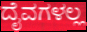
ದೈವಗಳಲ್ಲ